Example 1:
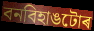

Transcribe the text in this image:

বনবিহাঙটোৰ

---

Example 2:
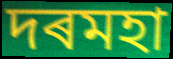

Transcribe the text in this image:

দৰমহা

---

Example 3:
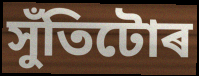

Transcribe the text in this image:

সুঁতিটোৰ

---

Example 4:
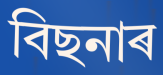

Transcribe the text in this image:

বিছনাৰ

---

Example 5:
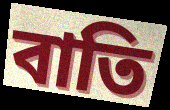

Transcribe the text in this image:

বাতি